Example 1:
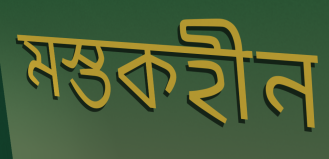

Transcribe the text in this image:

মস্তকহীন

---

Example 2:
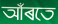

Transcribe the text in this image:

আঁৰতে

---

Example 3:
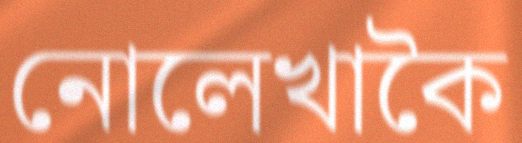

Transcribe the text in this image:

নোলেখাকৈ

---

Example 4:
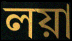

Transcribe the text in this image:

লয়া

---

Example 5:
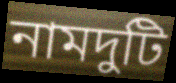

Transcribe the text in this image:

নামদুটি